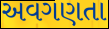
અવગણતા